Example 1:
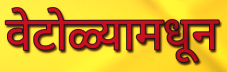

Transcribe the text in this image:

वेटोळ्यामधून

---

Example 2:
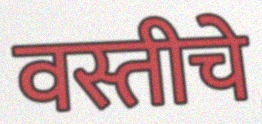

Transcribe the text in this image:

वस्तीचे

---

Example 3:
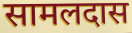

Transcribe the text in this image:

सामलदास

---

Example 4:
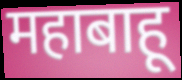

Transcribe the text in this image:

महाबाहू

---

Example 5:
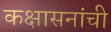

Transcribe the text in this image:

कक्षासनांची